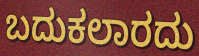
ಬದುಕಲಾರದು